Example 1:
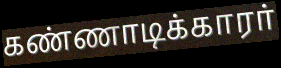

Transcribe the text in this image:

கண்ணாடிக்காரர்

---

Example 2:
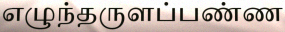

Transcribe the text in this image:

எழுந்தருளப்பண்ண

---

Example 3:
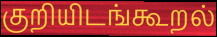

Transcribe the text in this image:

குறியிடங்கூறல்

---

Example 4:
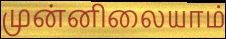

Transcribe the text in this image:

முன்னிலையாம்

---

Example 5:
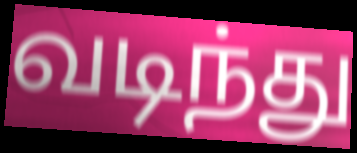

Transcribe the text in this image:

வடிந்து